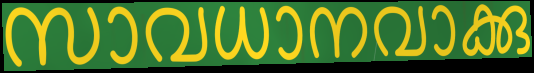
സാവധാനവാക്കു